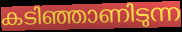
കടിഞ്ഞാണിടുന്ന